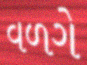
વળગે